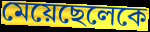
মেয়েছেলেকে